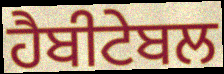
ਹੈਬੀਟੇਬਲ